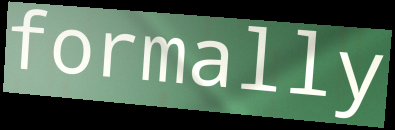
formally